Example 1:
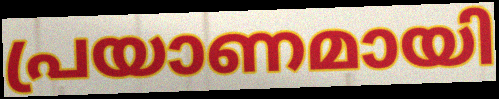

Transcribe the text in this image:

പ്രയാണമായി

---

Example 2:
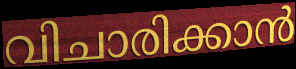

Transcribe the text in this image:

വിചാരിക്കാൻ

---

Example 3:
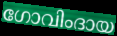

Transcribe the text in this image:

ഗോവിംദായ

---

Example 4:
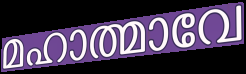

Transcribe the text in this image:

മഹാത്മാവേ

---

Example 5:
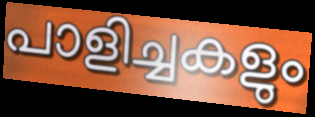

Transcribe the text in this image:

പാളിച്ചകളും